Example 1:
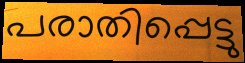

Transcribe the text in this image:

പരാതിപ്പെട്ടു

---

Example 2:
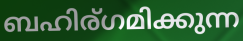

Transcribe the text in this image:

ബഹിര്ഗമിക്കുന്ന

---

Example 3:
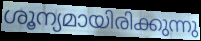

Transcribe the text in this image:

ശൂന്യമായിരിക്കുന്നു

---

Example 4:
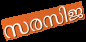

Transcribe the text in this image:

സരസിജ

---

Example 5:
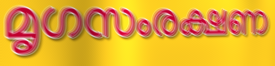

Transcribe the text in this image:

മൃഗസംരക്ഷണ